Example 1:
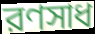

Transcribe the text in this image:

রণসাধ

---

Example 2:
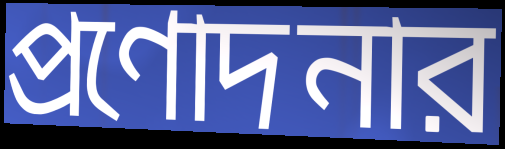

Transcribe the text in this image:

প্রণোদনার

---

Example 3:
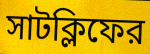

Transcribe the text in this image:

সাটক্লিফের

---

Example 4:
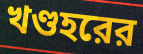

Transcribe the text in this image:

খণ্ডহরের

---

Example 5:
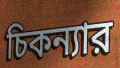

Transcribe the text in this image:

চিকন্যার